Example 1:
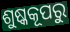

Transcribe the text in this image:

ଶୁଷ୍କକୂପରୁ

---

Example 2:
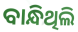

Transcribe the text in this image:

ବାନ୍ଧିଥିଲି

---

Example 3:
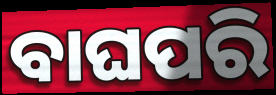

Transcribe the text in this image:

ବାଘପରି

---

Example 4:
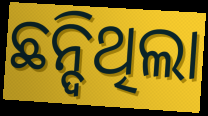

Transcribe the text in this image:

ଛନ୍ଦିଥିଲା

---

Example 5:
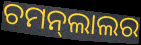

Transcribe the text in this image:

ଚମନ୍‍ଲାଲର